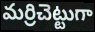
మర్రిచెట్టుగా